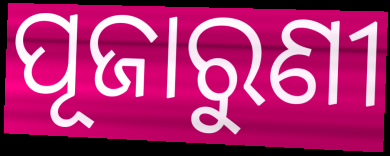
ପୂଜାରୁଣୀ